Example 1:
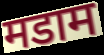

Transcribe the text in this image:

मडाम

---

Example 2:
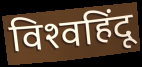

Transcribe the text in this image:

विश्वहिंदू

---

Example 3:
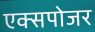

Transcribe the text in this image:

एक्सपोजर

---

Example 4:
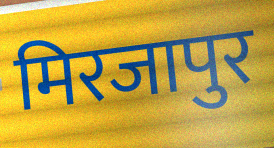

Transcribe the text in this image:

मिरजापुर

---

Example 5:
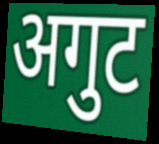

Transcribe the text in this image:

अगुट